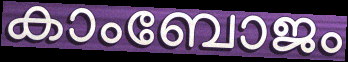
കാംബോജം